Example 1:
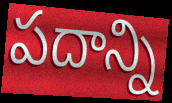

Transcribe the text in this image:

పదాన్ని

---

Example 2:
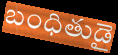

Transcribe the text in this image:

బంధితుడై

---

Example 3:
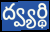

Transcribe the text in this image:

ద్వ్యర్థి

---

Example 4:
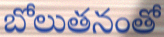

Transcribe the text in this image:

బోలుతనంతో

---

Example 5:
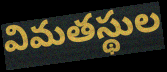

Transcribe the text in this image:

విమతస్థుల